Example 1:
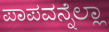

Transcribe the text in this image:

ಪಾಪವನ್ನೆಲ್ಲಾ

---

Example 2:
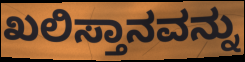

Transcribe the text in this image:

ಖಲಿಸ್ತಾನವನ್ನು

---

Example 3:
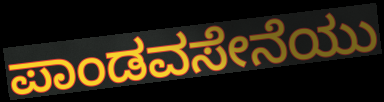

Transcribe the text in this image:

ಪಾಂಡವಸೇನೆಯು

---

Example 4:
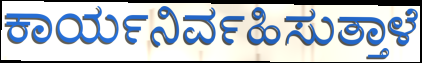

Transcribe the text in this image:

ಕಾರ್ಯನಿರ್ವಹಿಸುತ್ತಾಳೆ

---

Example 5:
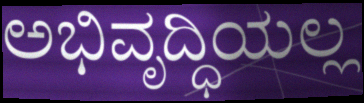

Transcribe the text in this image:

ಅಭಿವೃದ್ಧಿಯಲ್ಲ